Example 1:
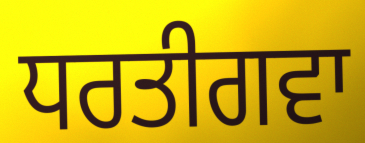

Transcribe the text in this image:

ਧਰਤੀਗਵਾ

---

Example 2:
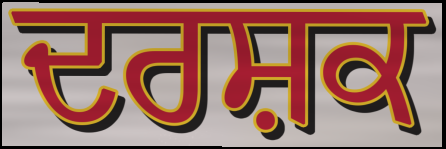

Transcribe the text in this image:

ਦਰਸ਼ਕ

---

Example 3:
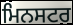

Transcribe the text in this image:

ਮਿਨਸਟਰ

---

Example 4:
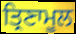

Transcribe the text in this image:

ਤ੍ਰਿਣਾਮੂਲ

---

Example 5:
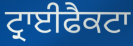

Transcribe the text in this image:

ਟ੍ਰਾਈਫੈਕਟਾ